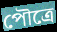
পৌত্রে